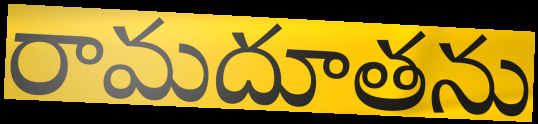
రామదూతను